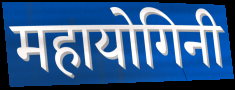
महायोगिनी